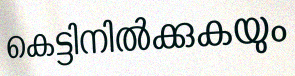
കെട്ടിനിൽക്കുകയും